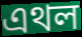
এথল